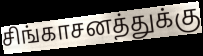
சிங்காசனத்துக்கு